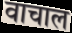
वाचाल